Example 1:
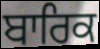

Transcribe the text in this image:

ਬਾਰਿਕ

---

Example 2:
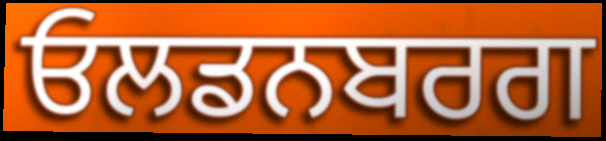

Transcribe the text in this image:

ਓਲਡਨਬਰਗ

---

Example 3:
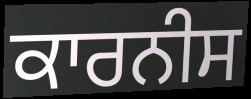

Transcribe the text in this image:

ਕਾਰਨੀਸ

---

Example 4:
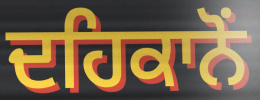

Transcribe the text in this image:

ਦਹਿਕਾਨੋਂ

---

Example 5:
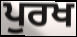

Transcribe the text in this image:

ਪੁਰਖ